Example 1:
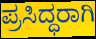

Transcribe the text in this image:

ಪ್ರಸಿದ್ಧರಾಗಿ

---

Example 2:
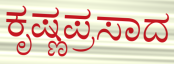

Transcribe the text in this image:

ಕೃಷ್ಣಪ್ರಸಾದ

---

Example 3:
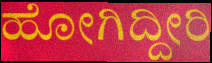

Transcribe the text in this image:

ಹೋಗಿದ್ದೀರಿ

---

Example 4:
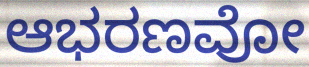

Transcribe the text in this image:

ಆಭರಣವೋ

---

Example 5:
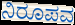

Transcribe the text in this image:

ನಿರೂಪವ